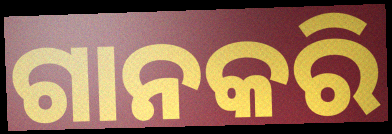
ଗାନକରି